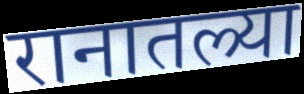
रानातल्या